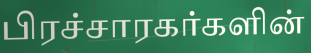
பிரச்சாரகர்களின்